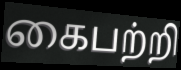
கைபற்றி